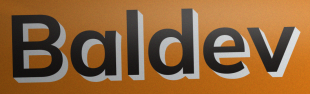
Baldev